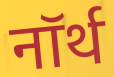
नॉर्थ